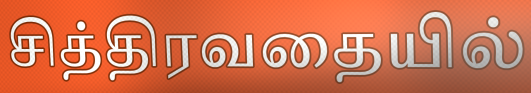
சித்திரவதையில்